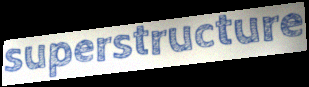
superstructure